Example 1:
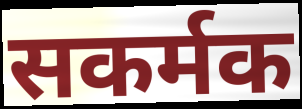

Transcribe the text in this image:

सकर्मक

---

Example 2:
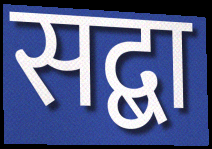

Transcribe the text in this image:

सद्बा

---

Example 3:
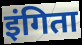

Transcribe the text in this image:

इंगिता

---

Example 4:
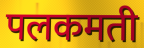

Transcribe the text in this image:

पलकमती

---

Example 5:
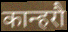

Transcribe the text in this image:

कान्हरौ